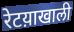
रेटय़ाखाली